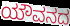
ಯೌವನದ